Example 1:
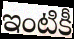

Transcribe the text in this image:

ఇంటికీ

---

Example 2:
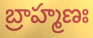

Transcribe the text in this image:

బ్రాహ్మణః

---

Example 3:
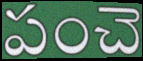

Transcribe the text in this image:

పంచె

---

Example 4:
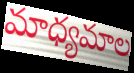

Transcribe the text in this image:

మాధ్యమాల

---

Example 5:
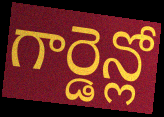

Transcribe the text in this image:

గార్డెన్లో